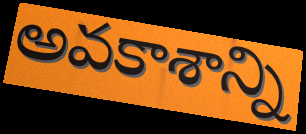
అవకాశాన్ని